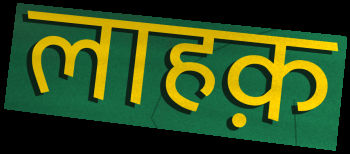
लाहक़